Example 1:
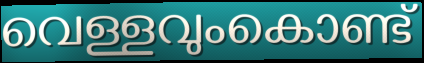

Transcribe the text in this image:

വെള്ളവുംകൊണ്ട്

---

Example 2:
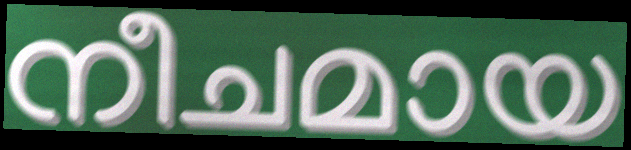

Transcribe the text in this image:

നീചമായ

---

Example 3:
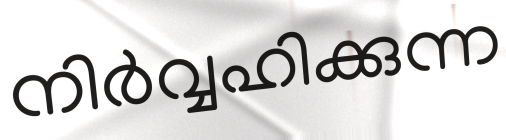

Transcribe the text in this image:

നിർവ്വഹിക്കുന്ന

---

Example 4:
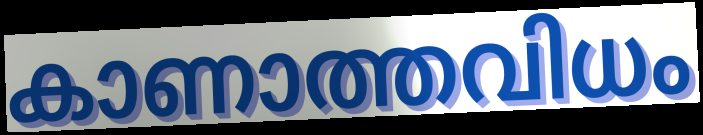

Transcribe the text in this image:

കാണാത്തവിധം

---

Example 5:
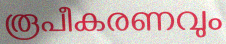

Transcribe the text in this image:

രൂപീകരണവും